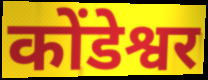
कोंडेश्वर